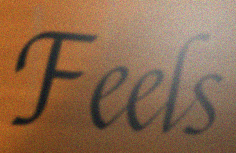
Feels